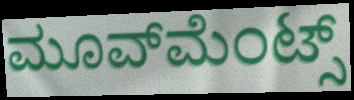
ಮೂವ್‍ಮೆಂಟ್ಸ್